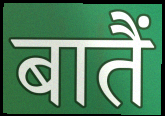
बातैं